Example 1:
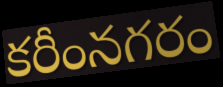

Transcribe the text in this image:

కరీంనగరం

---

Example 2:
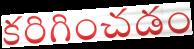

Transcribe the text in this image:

కరిగించడం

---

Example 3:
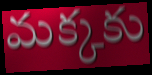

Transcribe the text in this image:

మక్కకు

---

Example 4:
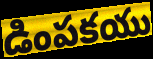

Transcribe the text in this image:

డింపకయు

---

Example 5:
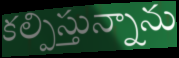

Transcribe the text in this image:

కల్పిస్తున్నాను